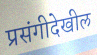
प्रसंगीदेखील